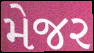
મેજર